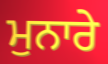
ਮੁਨਾਰੇ